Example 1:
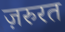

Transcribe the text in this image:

ज़रुरत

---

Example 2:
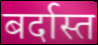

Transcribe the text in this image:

बर्दास्त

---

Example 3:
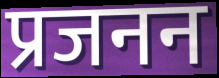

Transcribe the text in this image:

प्रजनन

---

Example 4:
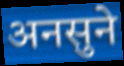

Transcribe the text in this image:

अनसुने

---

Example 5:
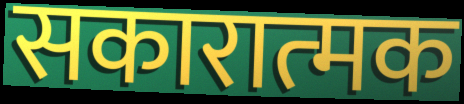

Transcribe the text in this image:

सकारात्‍मक